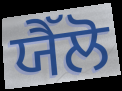
ਯੈੱਲੋ